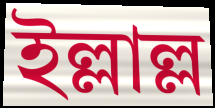
ইল্লাল্ল